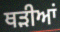
ਥੜੀਆਂ